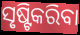
ସୃଷ୍ଟିକରିବା